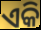
ଏକି